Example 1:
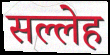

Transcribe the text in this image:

सल्लेह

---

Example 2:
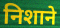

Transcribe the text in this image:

निशाने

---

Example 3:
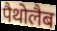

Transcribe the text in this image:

पैथोलैब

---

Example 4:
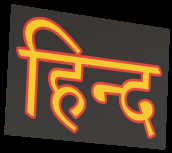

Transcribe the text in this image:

हिन्द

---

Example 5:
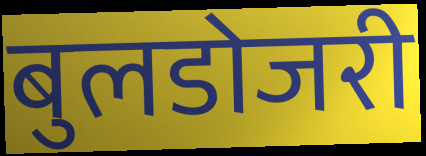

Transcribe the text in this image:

बुलडोजरी